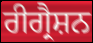
ਰੀਗ੍ਰੈਸ਼ਨ